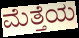
ಮೆತ್ತೆಯ